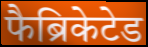
फैब्रिकेटेड